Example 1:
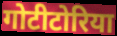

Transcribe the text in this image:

गोटीटोरिया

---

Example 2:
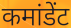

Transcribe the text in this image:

कमांडेंट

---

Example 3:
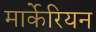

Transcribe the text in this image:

मार्केरियन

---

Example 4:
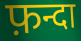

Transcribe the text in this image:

फ़न्दा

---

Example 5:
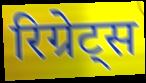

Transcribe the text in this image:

रिग्रेट्स